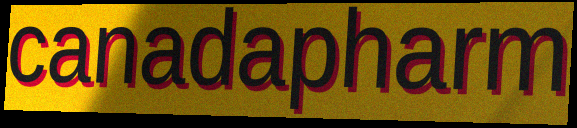
canadapharm